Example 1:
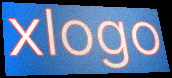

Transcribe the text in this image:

xlogo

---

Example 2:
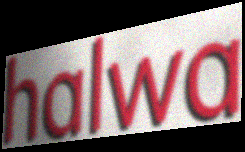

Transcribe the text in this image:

halwa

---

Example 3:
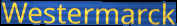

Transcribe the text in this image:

Westermarck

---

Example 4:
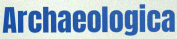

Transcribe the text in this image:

Archaeologica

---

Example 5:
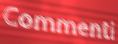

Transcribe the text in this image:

Commenti